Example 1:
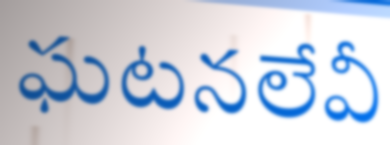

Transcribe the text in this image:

ఘటనలేవీ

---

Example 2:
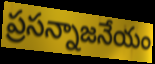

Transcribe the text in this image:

ప్రసన్నాజనేయం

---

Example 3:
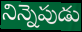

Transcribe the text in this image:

నిన్నెపుడు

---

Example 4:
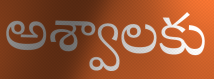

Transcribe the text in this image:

అశ్వాలకు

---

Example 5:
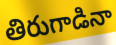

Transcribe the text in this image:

తిరుగాడినా